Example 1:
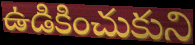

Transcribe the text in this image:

ఉడికించుకుని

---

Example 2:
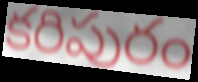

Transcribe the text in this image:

కరిపురం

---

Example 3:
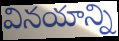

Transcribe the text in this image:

వినయాన్ని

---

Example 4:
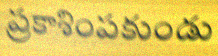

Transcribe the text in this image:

ప్రకాశింపకుండు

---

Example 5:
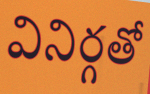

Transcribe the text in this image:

వినిర్గతో